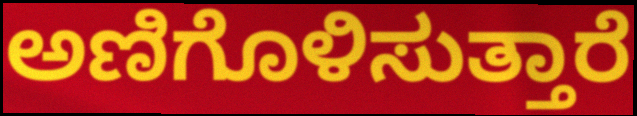
ಅಣಿಗೊಳಿಸುತ್ತಾರೆ